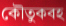
কৌতুকবহ